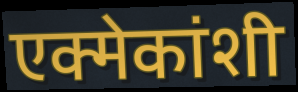
एक्मेकांशी